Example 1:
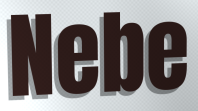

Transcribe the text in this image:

Nebe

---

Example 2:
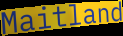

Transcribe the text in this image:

Maitland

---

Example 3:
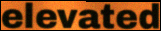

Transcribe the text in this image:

elevated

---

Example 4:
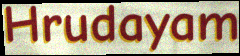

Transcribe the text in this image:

Hrudayam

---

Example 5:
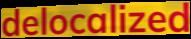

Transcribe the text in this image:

delocalized